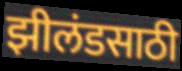
झीलंडसाठी